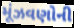
મૂંઝવણોની